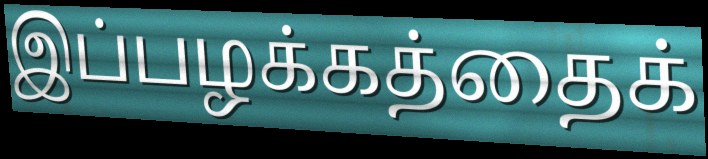
இப்பழக்கத்தைக்